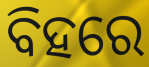
ବିହରେ